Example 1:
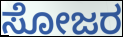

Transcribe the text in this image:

ಸೋಜರ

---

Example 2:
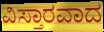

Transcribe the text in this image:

ವಿಸ್ತಾರವಾದ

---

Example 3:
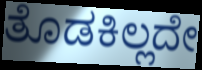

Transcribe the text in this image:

ತೊಡಕಿಲ್ಲದೇ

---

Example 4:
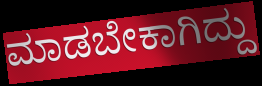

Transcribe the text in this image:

ಮಾಡಬೇಕಾಗಿದ್ದು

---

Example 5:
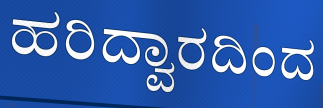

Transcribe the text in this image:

ಹರಿದ್ವಾರದಿಂದ